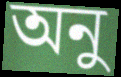
অনু